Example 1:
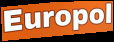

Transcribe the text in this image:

Europol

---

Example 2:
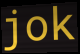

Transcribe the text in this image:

jok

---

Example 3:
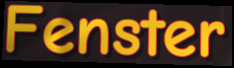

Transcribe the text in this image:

Fenster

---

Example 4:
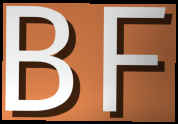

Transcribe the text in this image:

BF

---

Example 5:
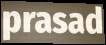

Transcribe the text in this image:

prasad